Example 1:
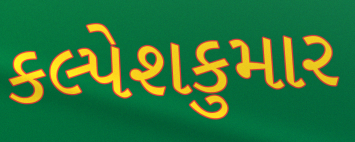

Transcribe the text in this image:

કલ્પેશકુમાર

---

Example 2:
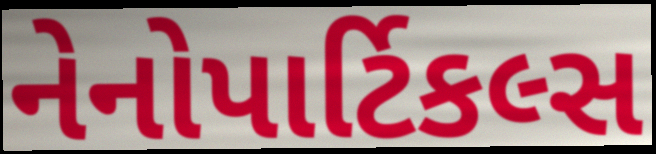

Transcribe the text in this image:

નેનોપાર્ટિકલ્સ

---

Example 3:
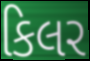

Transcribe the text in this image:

કિલર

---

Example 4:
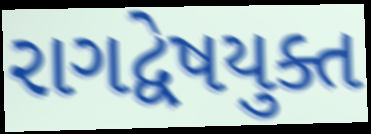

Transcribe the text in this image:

રાગદ્વેષયુક્ત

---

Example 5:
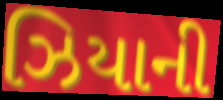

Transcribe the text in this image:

ઝિયાની